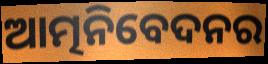
ଆତ୍ମନିବେଦନର